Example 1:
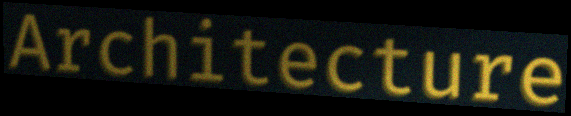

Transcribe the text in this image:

Architecture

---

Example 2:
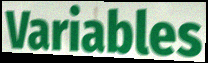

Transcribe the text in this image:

Variables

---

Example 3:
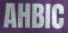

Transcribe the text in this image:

AHBIC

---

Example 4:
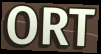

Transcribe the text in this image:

ORT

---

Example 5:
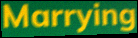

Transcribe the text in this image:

Marrying